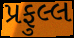
પ્રફુલ્લ